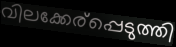
വിലക്കേര്പ്പെടുത്തി